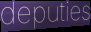
deputies